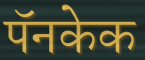
पॅनकेक